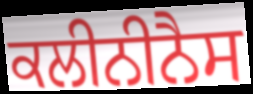
ਕਲੀਨੀਨੈਸ